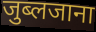
जुब्लजाना